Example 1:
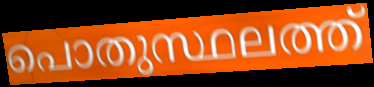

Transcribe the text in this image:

പൊതുസ്ഥലത്ത്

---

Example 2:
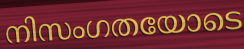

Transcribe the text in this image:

നിസംഗതയോടെ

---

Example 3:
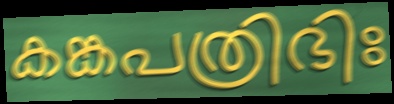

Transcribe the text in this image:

കങ്കപത്രിഭിഃ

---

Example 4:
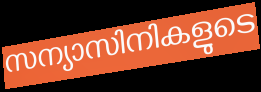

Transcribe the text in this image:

സന്യാസിനികളുടെ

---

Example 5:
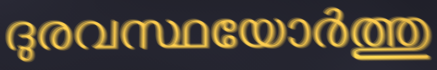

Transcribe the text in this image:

ദുരവസ്ഥയോർത്തു